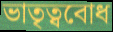
ভাতৃত্ববোধ